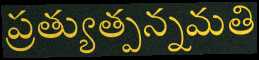
ప్రత్యుత్పన్నమతి